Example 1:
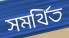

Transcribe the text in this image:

সমর্থিত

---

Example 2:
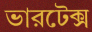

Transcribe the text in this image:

ভারটেক্স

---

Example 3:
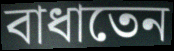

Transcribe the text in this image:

বাধাতেন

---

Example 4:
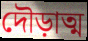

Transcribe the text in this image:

দৌড়াত্ম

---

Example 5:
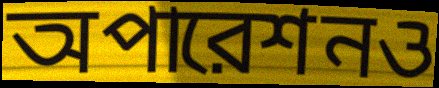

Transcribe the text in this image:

অপারেশনও